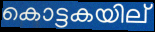
കൊട്ടകയില്